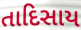
તાદિસાય